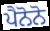
ਪੈਨੋਨੋ